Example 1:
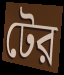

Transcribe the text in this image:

টের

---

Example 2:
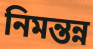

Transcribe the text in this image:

নিমন্তন্ন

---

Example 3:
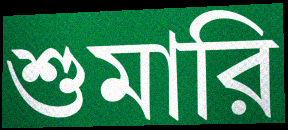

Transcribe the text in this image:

শুমারি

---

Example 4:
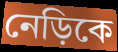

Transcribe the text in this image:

নেড়িকে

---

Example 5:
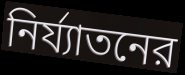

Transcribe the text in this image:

নির্য্যাতনের